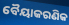
ବୈୟାକରଣିକ